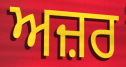
ਅਜ਼ਰ